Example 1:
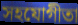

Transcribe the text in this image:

সহযোগীতা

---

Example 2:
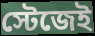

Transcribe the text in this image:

স্টেজেই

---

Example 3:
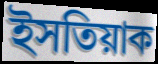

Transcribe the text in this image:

ইসতিয়াক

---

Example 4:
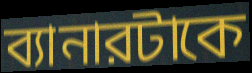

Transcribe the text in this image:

ব্যানারটাকে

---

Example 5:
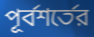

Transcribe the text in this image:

পূর্বশর্তের